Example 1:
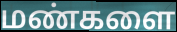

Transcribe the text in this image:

மண்களை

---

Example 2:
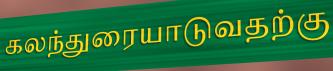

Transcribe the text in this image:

கலந்துரையாடுவதற்கு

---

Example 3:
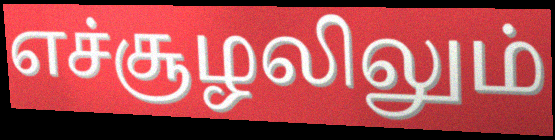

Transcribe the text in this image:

எச்சூழலிலும்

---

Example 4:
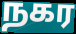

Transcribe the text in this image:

நகர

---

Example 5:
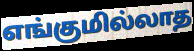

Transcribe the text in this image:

எங்குமில்லாத